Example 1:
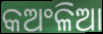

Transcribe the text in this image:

କଅଂଳିଆ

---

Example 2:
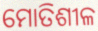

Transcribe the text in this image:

ମୋତିଶୀଳ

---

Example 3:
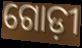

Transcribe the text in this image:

ଗୋଡ଼ୀ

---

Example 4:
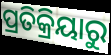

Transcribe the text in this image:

ପ୍ରତିକ୍ରିୟାରୁ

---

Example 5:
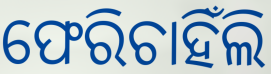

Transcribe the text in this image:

ଫେରିଚାହିଁଲି